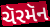
ચૅરમૅન